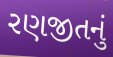
રણજીતનું